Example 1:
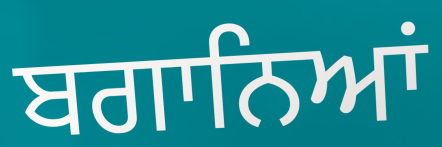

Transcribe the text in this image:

ਬਗਾਨਿਆਂ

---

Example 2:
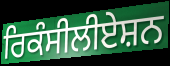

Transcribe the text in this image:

ਰਿਕੰਸੀਲੀਏਸ਼ਨ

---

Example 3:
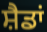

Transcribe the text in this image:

ਸ਼ੈਡਾਂ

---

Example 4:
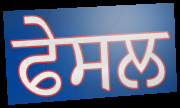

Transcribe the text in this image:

ਫੇਸਲ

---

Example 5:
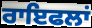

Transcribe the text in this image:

ਰਾਇਫਲਾਂ